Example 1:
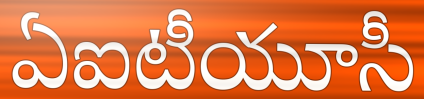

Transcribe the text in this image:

ఏఐటీయూసీ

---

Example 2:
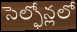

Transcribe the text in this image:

సెల్ఫోన్లలో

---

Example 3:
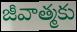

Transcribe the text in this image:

జీవాత్మకు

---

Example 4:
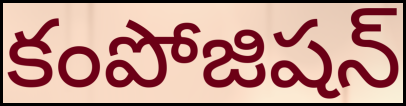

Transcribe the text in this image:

కంపోజిషన్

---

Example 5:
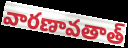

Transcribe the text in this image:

వారణావతాత్